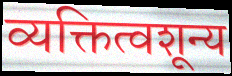
व्यक्तित्वशून्य